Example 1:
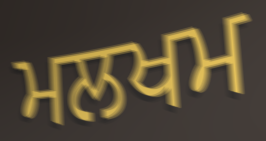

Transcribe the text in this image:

ਮਲਖਮ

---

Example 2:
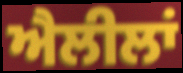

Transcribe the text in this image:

ਐਲੀਲਾਂ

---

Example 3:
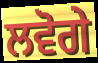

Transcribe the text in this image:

ਲਵੋਗੇ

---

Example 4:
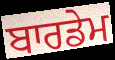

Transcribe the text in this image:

ਬਾਰਡੇਮ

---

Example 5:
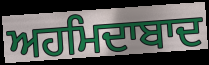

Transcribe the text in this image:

ਅਹਮਿਦਾਬਾਦ